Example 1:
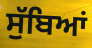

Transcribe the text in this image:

ਸੁੱਬਿਆਂ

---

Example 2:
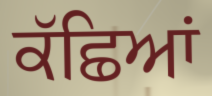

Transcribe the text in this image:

ਕੱਛਿਆਂ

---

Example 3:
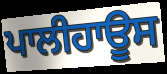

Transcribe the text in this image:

ਪਾਲੀਹਾਊਸ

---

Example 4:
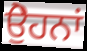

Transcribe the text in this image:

ਉੇਹਨਾਂ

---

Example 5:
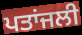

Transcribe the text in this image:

ਪਤਾਂਜਲੀ